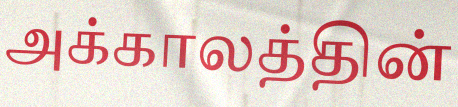
அக்காலத்தின்